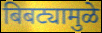
बिबट्यामुळे